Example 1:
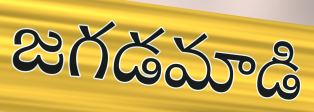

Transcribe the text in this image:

జగడమాడి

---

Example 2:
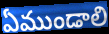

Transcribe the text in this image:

ఏముండాలి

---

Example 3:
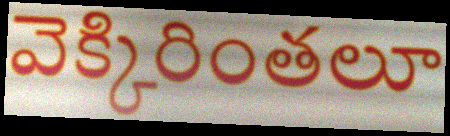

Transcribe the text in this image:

వెక్కిరింతలూ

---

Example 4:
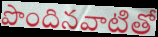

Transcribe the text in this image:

పొందినవాటితో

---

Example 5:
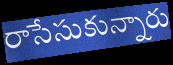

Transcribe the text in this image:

రాసేసుకున్నారు